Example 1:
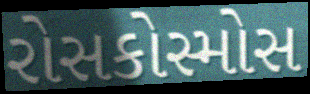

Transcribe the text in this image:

રોસકોસ્મોસ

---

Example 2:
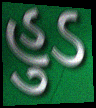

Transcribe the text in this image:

હુડ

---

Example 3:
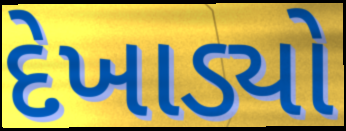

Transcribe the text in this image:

દેખાડ્યો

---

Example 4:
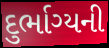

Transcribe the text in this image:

દુર્ભાગ્યની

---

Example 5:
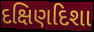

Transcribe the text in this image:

દક્ષિણદિશા